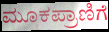
ಮೂಕಪ್ರಾಣಿಗೆ